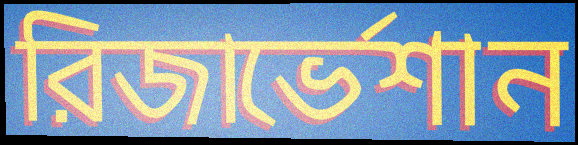
রিজার্ভেশান